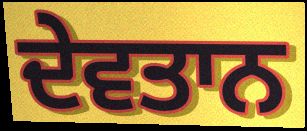
ਦੇਵਤਾਨ